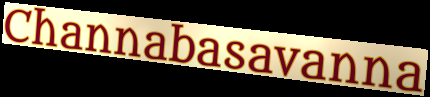
Channabasavanna